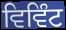
ਵਿਵਿੰਟ